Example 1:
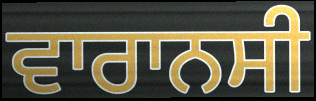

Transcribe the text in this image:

ਵਾਰਾਨਸੀ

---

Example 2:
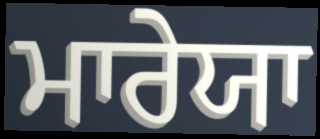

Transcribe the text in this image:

ਮਾਰੇਯਾ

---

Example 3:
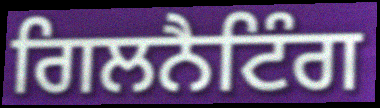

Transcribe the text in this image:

ਗਿਲਨੈਟਿੰਗ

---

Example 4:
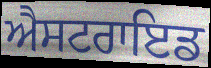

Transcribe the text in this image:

ਐਸਟਰਾਇਡ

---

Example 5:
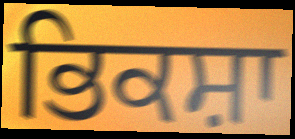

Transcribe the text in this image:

ਭਿਕਸ਼ਾ